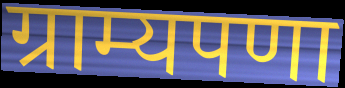
ग्राम्यपणा